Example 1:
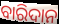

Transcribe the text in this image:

ବାରିଦାନ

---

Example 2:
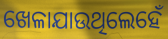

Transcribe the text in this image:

ଖେଳାଯାଉଥିଲେହେଁ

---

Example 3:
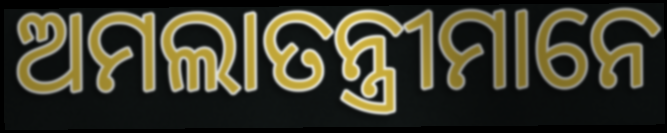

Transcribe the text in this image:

ଅମଲାତନ୍ତ୍ରୀମାନେ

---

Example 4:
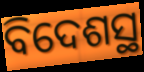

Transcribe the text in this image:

ବିଦେଶସ୍ଥ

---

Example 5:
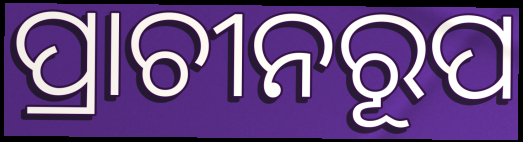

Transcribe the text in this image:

ପ୍ରାଚୀନରୂପ